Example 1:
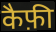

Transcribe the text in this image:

कैफ़ी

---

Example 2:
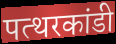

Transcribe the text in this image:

पत्थरकांडी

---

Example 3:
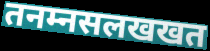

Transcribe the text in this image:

तनम्नसलखखत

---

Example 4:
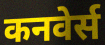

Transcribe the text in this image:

कनवेर्स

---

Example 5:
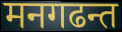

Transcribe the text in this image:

मनगढन्त